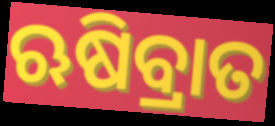
ଋଷିବ୍ରାତ